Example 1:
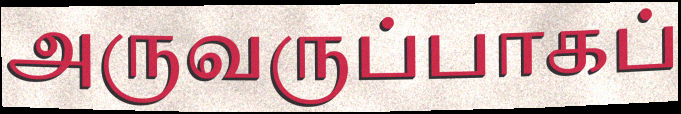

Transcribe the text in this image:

அருவருப்பாகப்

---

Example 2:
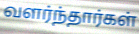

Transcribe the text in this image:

வளர்ந்தார்கள்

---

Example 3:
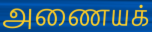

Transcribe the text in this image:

அணையக்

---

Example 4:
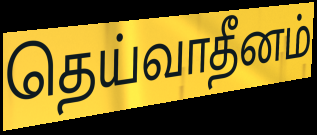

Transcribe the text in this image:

தெய்வாதீனம்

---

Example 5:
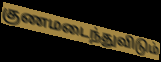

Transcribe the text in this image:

குணமடைந்துவிடும்